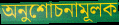
অনুশোচনামূলক